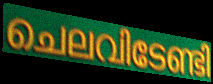
ചെലവിടേണ്ടി